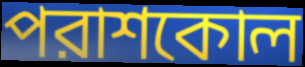
পরাশকোল